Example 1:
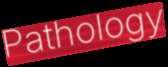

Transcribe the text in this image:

Pathology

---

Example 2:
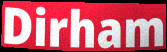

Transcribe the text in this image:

Dirham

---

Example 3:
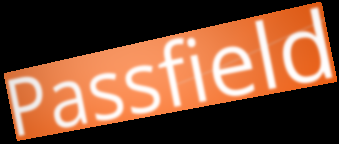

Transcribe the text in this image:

Passfield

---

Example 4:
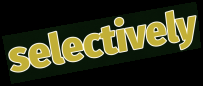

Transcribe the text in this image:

selectively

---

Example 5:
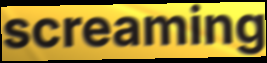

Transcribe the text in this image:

screaming